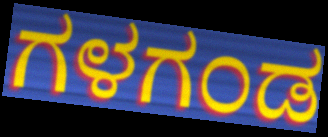
ಗಳಗಂಡ